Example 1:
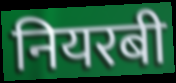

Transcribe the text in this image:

नियरबी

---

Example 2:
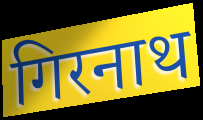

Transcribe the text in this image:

गिरनाथ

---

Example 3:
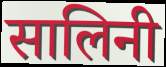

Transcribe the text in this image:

सालिनी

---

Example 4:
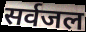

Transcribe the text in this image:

सर्वजल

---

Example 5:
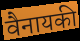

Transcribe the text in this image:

वैनायकी